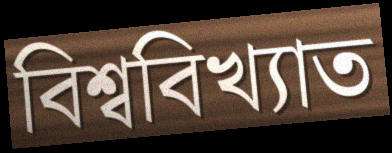
বিশ্ববিখ্যাত